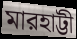
মারহাট্টী